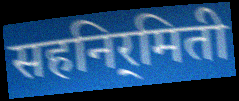
सहनिर्मिती